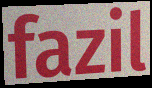
fazil